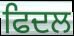
ਫਿਦਲ